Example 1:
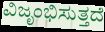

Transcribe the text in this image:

ವಿಜೃಂಭಿಸುತ್ತದೆ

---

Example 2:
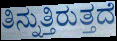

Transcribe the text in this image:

ತಿನ್ನುತ್ತಿರುತ್ತದೆ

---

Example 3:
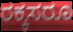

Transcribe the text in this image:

ರಕ್ಕಸರೂ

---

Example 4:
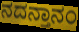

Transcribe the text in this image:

ನದನ್ತಾನಂ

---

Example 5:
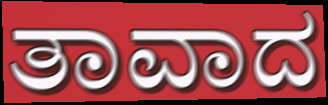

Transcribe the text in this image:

ತಾವಾದ